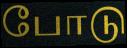
போடு